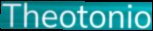
Theotonio